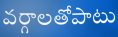
వర్గాలతోపాటు